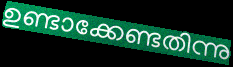
ഉണ്ടാക്കേണ്ടതിന്നു